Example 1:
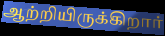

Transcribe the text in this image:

ஆற்றியிருக்கிறார்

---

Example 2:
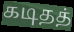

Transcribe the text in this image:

கடிதத்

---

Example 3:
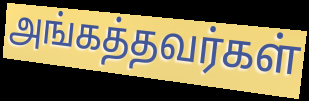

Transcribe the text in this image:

அங்கத்தவர்கள்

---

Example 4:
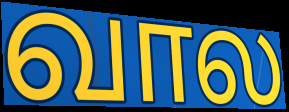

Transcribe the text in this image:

வால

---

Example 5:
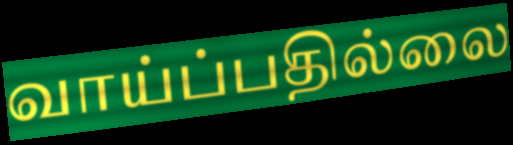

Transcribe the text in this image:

வாய்ப்பதில்லை